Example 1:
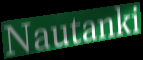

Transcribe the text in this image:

Nautanki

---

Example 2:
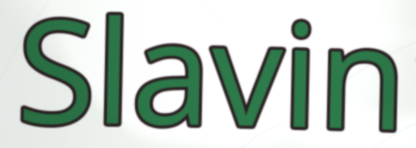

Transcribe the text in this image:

Slavin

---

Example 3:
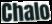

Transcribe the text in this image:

Chalo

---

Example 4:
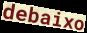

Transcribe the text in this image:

debaixo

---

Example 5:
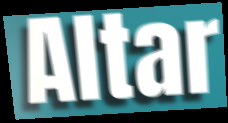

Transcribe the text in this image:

Altar